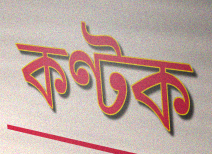
কণ্টক